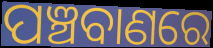
ପଞ୍ଚବାଣରେ